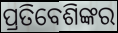
ପ୍ରତିବେଶିଙ୍କର